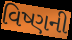
વિષ્ણની